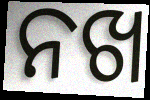
ନଖ